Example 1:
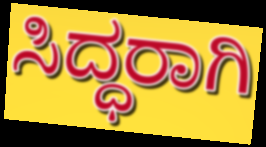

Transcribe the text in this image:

ಸಿದ್ಧರಾಗಿ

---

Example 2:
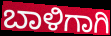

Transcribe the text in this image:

ಬಾಳಿಗಾಗಿ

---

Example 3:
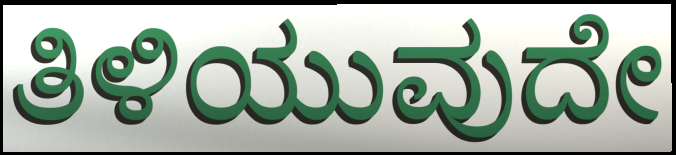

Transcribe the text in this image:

ತಿಳಿಯುವುದೇ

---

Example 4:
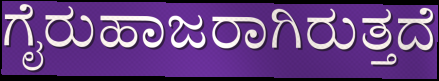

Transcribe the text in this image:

ಗೈರುಹಾಜರಾಗಿರುತ್ತದೆ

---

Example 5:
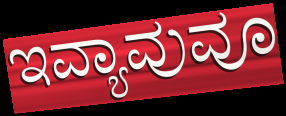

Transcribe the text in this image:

ಇವ್ಯಾವುವೂ